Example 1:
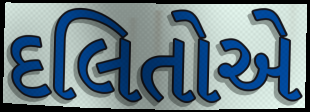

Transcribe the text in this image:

દલિતોએ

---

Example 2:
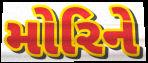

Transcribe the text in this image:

મોરિને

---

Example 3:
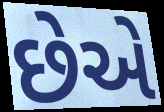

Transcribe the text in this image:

છેએ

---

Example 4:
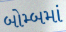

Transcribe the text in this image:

બોમ્બમાં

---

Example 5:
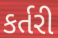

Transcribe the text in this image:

કર્તરી